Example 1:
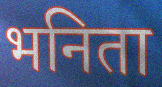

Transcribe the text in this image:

भनिता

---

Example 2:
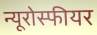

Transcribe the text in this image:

न्यूरोस्फीयर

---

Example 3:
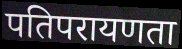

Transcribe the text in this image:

पतिपरायणता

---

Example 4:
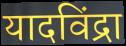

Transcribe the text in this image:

यादविंद्रा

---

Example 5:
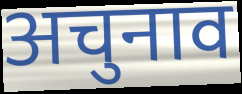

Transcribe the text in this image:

अचुनाव